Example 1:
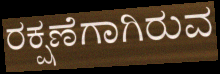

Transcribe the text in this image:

ರಕ್ಷಣೆಗಾಗಿರುವ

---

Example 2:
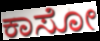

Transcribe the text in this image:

ಕಾಸೋ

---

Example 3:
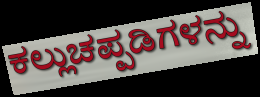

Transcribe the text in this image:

ಕಲ್ಲುಚಪ್ಪಡಿಗಳನ್ನು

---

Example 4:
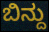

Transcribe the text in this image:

ಬಿನ್ದು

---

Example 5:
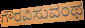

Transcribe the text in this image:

ಗೌರವಿಸುವಂಥ